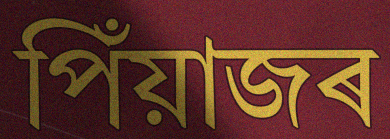
পিঁয়াজৰ